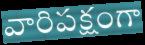
వారిపక్షంగా